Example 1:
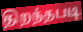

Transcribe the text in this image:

திறந்தபடி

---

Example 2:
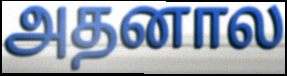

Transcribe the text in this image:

அதனால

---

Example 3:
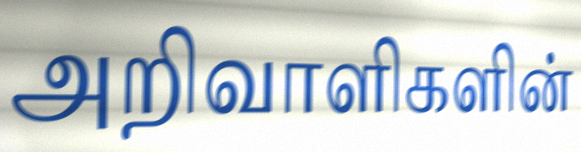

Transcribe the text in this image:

அறிவாளிகளின்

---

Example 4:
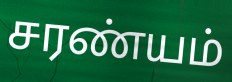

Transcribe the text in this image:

சரண்யம்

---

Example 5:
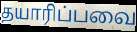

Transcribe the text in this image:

தயாரிப்பவை